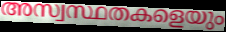
അസ്വസ്ഥതകളെയും